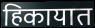
हिकायात